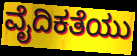
ವೈದಿಕತೆಯು